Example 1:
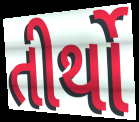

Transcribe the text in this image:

તીર્થો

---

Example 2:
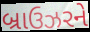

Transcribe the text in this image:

બ્રાઉઝરને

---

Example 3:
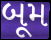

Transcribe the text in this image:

બૂમ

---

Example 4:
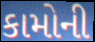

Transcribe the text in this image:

કામોની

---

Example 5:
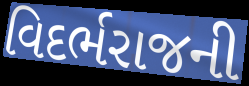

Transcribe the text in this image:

વિદર્ભરાજની